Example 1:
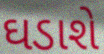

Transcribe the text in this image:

ઘડાશે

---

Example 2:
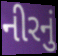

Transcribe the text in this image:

નીરનું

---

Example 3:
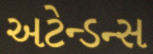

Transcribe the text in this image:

અટેન્ડન્સ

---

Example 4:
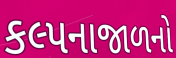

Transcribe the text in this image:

કલ્પનાજાળનો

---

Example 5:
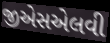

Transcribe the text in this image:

જીએસએલવી